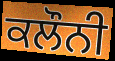
ਕਲੌਨੀ